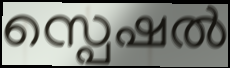
സ്പെഷൽ